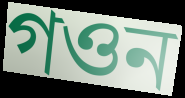
গওন